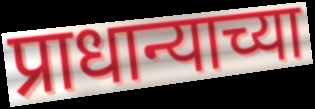
प्राधान्याच्या